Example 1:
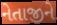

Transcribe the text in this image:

નેતાજીને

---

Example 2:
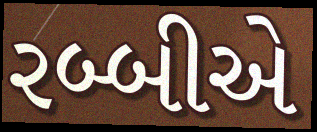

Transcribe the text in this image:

રબ્બીએ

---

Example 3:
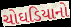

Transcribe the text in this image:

ચોઘડિયાનો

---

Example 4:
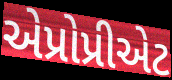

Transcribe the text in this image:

એપ્રોપ્રીએટ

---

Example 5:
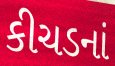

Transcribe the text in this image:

કીચડનાં